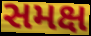
સમક્ષ